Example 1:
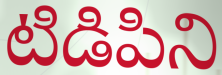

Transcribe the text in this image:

టిడిపిని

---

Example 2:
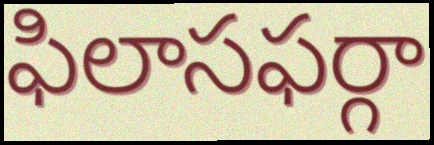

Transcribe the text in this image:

ఫిలాసఫర్గా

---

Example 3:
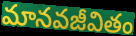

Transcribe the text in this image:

మానవజీవితం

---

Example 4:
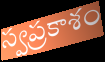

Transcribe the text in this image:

స్వప్రకాశం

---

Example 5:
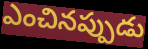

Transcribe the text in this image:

ఎంచినప్పుడు